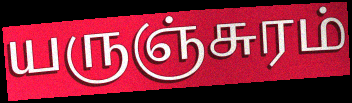
யருஞ்சுரம்